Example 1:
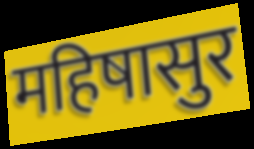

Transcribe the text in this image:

महिषासुर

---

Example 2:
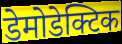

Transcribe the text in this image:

डेमोडेक्टिक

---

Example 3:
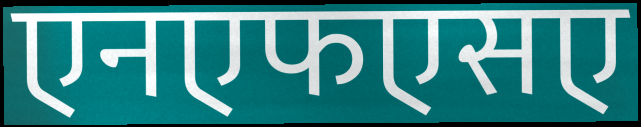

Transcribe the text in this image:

एनएफएसए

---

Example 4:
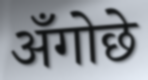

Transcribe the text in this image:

अँगोछे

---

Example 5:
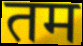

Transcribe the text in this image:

तम